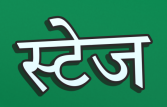
स्‍टेज